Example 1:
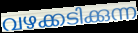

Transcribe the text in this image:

വഴക്കടിക്കുന്ന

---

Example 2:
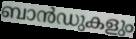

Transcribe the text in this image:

ബാൻഡുകളും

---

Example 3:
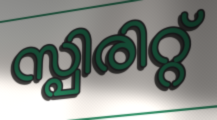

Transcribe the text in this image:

സ്പിരിറ്റ്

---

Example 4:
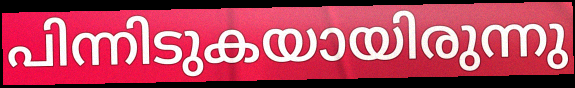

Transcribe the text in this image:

പിന്നിടുകയായിരുന്നു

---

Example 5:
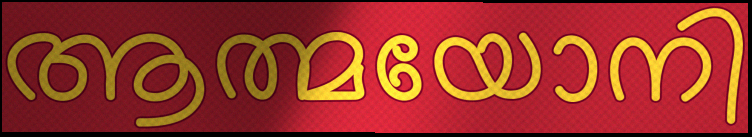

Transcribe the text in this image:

ആത്മയോനി